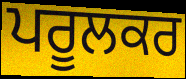
ਪਰੂਲਕਰ